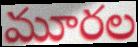
మూరల